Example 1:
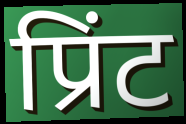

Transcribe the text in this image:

प्रिंट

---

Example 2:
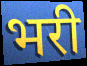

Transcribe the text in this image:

भरी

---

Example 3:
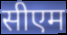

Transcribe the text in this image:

सीएम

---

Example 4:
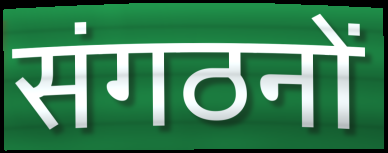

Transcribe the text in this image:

संगठनों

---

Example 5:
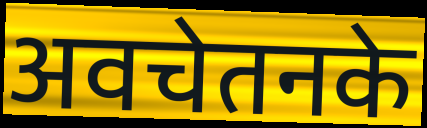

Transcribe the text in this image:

अवचेतनके